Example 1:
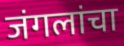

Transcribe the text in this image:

जंगलांचा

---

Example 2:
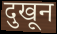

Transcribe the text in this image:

दुखून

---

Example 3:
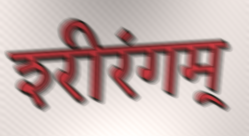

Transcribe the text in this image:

श्रीरंगम्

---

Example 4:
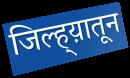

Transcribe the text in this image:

जिल्ह्य़ातून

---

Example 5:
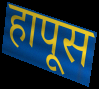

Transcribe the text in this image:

हापूस